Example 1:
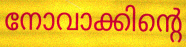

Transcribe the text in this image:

നോവാക്കിന്റെ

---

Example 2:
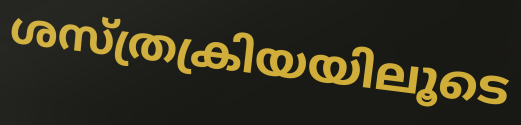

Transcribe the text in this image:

ശസ്ത്രക്രിയയിലൂടെ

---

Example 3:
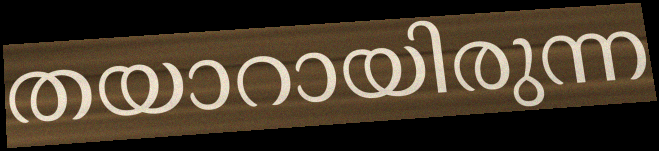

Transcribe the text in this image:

തയാറായിരുന്ന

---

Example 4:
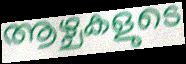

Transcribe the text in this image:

ആഴ്ചകളുടെ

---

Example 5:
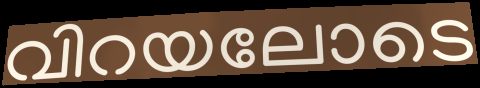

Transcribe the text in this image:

വിറയലോടെ